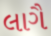
લાગૈ